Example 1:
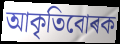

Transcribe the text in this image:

আকৃতিবোৰক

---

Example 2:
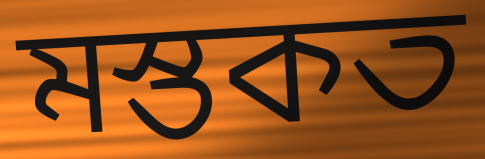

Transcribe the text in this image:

মস্তকত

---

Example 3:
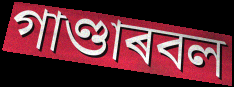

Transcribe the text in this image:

গাণ্ডাৰবল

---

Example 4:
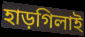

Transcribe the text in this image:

হাড়গিলাই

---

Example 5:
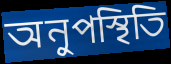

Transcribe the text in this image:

অনুপস্থিতি